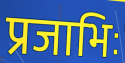
प्रजाभिः